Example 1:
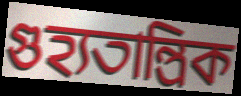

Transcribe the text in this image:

গুহ্যতান্ত্ৰিক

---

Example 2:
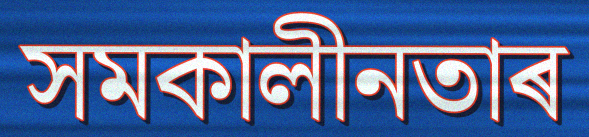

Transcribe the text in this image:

সমকালীনতাৰ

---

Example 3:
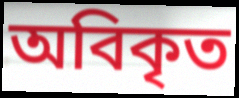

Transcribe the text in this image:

অবিকৃত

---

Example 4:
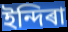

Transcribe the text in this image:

ইন্দিৰা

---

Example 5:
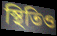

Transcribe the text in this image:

স্থিতিও